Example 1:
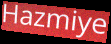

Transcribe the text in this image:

Hazmiye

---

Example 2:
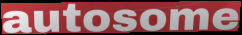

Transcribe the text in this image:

autosome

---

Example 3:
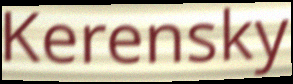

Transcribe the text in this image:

Kerensky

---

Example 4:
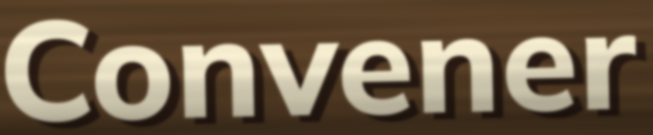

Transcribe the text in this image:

Convener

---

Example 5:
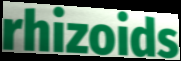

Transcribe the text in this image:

rhizoids